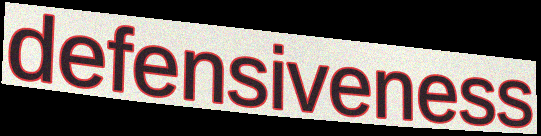
defensiveness